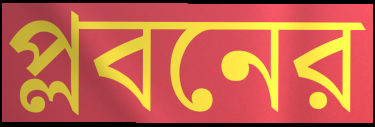
প্লবনের